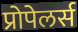
प्रोपेलर्स